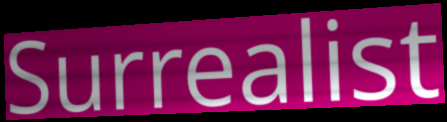
Surrealist